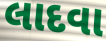
લાદવા